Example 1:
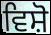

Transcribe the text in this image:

ਵਿਸ਼ੋ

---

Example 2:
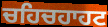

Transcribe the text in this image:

ਚਹਿਚਹਾਹਟ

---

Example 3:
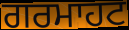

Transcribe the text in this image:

ਗਰਮਾਹਟ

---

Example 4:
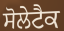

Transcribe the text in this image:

ਸੋਲੇਟੈਕ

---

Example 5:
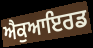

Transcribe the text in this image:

ਐਕੁਆਇਰਡ